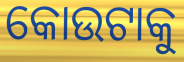
କୋଉଟାକୁ